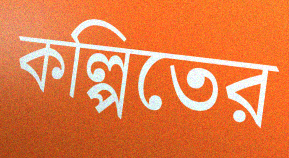
কল্পিতের